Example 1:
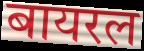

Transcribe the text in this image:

बायरल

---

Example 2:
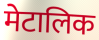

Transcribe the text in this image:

मेटालिक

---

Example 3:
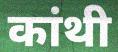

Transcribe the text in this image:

कांथी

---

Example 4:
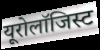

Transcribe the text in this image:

यूरोलॉजिस्ट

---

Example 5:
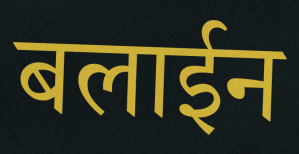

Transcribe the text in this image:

बलाईन